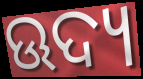
ଊଦ୍ୟ